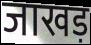
जाखड़